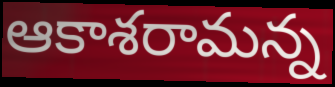
ఆకాశరామన్న